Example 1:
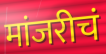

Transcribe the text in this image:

मांजरीचं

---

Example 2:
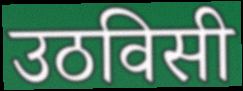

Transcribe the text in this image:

उठविसी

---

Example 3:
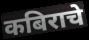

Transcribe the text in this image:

कबिराचे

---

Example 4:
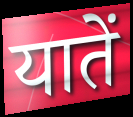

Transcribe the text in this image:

यातें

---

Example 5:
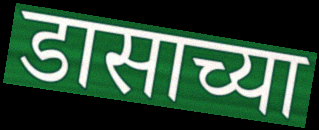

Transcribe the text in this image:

डासाच्या